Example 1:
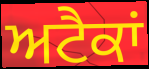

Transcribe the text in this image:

ਅਟੈਕਾਂ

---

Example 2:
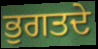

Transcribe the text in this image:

ਭੁਗਤਦੇ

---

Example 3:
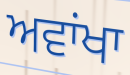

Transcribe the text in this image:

ਅਵਾਂਖਾ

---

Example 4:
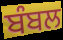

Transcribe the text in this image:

ਬੰਬਲ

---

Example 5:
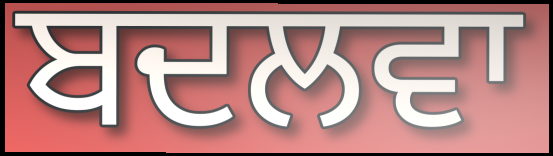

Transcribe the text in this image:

ਬਦਲਵਾ